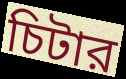
চিটার